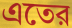
এতের